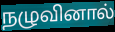
நழுவினால்